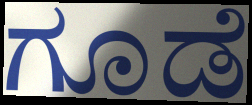
ಗೂಡೆ